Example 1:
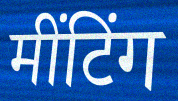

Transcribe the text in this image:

मींटिंग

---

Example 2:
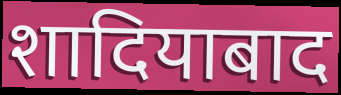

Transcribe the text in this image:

शादियाबाद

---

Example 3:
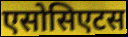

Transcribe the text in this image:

एसोसिएटस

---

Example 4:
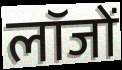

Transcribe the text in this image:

लॉजों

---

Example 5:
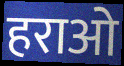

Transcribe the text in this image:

हराओ